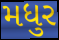
મધુર